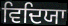
ਵਿਦਿਯਾ